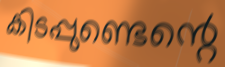
കിടപ്പുണ്ടെന്റെ